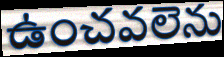
ఉంచవలెను